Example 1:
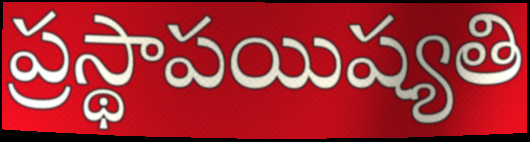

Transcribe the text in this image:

ప్రస్థాపయిష్యతి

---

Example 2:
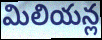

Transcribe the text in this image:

మిలియన్ల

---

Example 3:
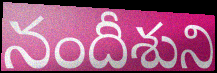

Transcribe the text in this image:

నందీశుని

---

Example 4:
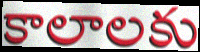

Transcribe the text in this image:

కాలాలకు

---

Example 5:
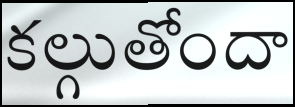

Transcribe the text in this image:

కల్గుతోందా